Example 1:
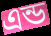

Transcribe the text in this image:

এন্ড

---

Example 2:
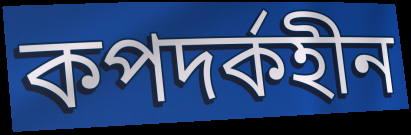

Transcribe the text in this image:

কপদর্কহীন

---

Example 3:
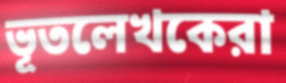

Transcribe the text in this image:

ভূতলেখকেরা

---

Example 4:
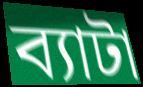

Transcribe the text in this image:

ব্যাটা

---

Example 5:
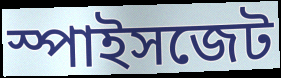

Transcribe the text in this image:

স্পাইসজেট